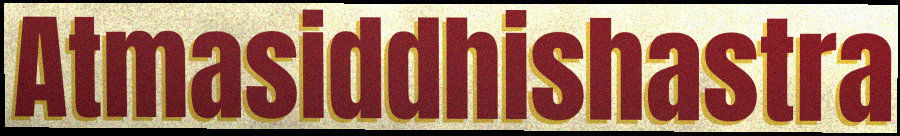
Atmasiddhishastra